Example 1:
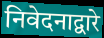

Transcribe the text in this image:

निवेदनाद्वारे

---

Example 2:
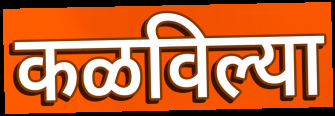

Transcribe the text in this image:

कळविल्या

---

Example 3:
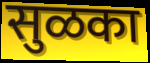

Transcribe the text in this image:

सुळका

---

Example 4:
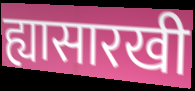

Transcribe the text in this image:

ह्यासारखी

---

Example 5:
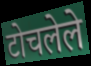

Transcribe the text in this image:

टोचलेले